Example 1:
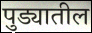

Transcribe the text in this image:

पुड्यातील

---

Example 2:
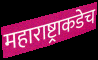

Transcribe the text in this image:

महाराष्ट्राकडेच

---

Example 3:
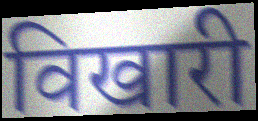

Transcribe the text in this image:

विखारी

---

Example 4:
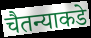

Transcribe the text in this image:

चैतन्याकडे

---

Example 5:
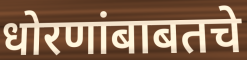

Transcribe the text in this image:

धोरणांबाबतचे